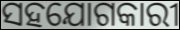
ସହଯୋଗକାରୀ